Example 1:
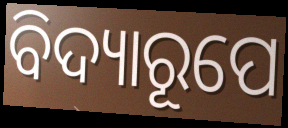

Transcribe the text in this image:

ବିଦ୍ୟାରୂପେ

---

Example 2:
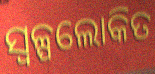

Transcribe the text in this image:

ସ୍ୱଳ୍ପଲୋକିତ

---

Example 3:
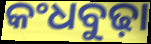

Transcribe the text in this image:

କଂଧବୁଢ଼ା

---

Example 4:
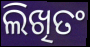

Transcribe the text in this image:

ଲିଖିତଂ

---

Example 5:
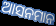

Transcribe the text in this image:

ଆସନମାନ